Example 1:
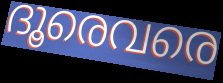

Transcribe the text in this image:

ദൂരെവരെ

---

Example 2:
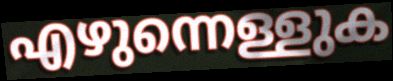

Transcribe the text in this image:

എഴുന്നെള്ളുക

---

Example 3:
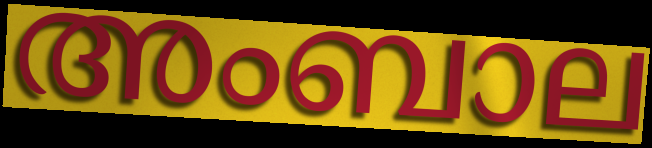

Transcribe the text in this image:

അംബാല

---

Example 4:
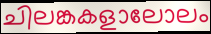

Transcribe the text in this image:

ചിലങ്കകളാലോലം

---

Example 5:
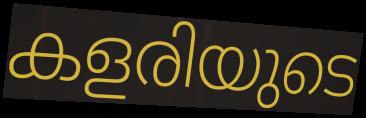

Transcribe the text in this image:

കളരിയുടെ